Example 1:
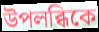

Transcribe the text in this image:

উপলব্ধিকে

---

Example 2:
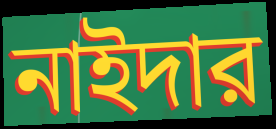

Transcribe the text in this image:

নাইদার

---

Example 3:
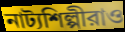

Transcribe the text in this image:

নাট্যশিল্পীরাও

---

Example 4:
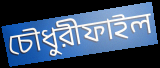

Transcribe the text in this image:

চৌধুরীফাইল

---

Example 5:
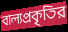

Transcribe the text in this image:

বাল্যপ্রকৃতির